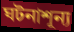
ঘটনাশূন্য